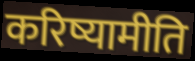
करिष्यामीति